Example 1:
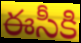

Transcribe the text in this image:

ఈసీకి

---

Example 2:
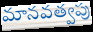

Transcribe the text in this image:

మానవత్వపు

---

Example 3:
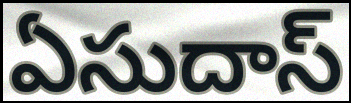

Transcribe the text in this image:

ఏసుదాస్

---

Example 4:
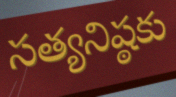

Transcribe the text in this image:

సత్యనిష్ఠకు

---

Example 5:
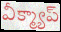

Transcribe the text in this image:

వీక్మ్యాప్